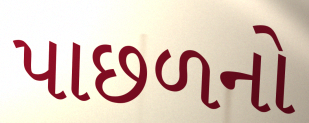
પાછળનો